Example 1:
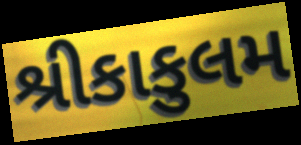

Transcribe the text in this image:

શ્રીકાકુલમ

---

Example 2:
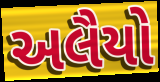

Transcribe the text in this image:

અલૈયો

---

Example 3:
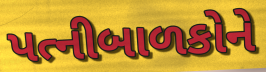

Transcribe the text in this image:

પત્નીબાળકોને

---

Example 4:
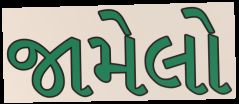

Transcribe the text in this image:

જામેલો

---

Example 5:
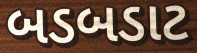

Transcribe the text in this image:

બડબડાટ